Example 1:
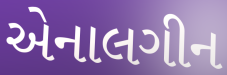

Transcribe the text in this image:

એનાલગીન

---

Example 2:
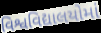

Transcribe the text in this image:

વિશ્વવિદ્યાલયોમાં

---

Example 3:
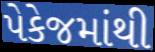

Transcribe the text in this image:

પેકેજમાંથી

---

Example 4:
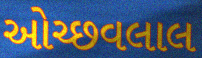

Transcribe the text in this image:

ઓચ્છવલાલ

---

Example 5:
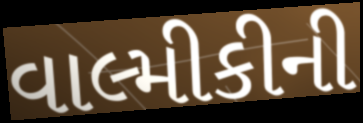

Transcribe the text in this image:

વાલ્મીકીની